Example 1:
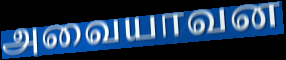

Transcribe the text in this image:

அவையாவன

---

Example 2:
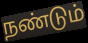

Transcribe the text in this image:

நண்டும்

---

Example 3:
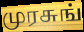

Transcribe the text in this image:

முரசுங்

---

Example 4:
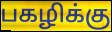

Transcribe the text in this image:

பகழிக்கு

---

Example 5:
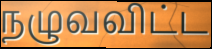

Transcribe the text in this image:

நழுவவிட்ட